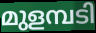
മുളമ്പടി